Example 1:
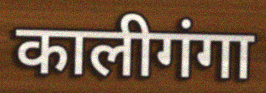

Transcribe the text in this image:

कालीगंगा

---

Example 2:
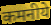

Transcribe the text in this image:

कमनीये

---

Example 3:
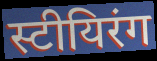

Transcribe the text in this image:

स्टीयिरंग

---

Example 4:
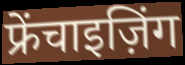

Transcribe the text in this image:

फ्रेंचाइज़िंग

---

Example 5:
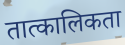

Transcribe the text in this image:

तात्कालिकता